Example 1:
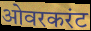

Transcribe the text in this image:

ओवरकरंट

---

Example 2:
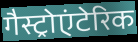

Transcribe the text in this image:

गैस्ट्रोएंटेरिक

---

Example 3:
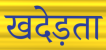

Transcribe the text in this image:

खदेड़ता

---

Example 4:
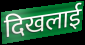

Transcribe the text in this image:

दिखलाई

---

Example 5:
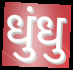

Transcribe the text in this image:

धुंधु